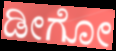
ಡೀಗೋ